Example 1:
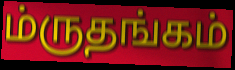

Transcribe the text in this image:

ம்ருதங்கம்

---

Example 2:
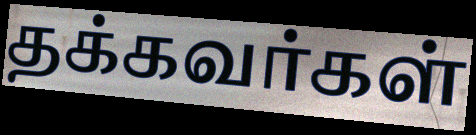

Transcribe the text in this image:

தக்கவர்கள்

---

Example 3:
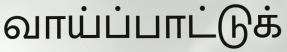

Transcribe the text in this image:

வாய்ப்பாட்டுக்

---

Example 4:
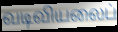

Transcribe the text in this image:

வடிவியலைப்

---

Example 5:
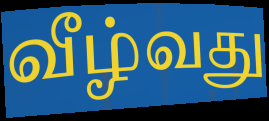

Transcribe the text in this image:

வீழ்வது